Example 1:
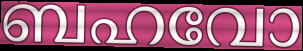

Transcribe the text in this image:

ബഹവോ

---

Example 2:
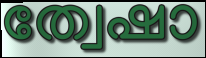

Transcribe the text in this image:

ത്വേഷാ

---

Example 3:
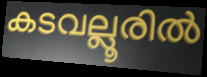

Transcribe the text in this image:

കടവല്ലൂരിൽ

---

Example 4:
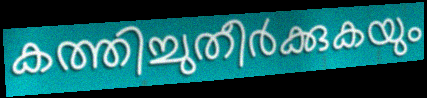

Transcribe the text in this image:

കത്തിച്ചുതീർക്കുകയും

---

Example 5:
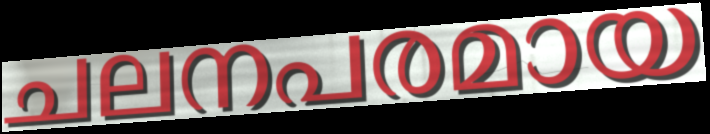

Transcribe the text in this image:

ചലനപരമായ